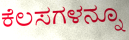
ಕೆಲಸಗಳನ್ನೂ